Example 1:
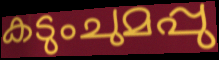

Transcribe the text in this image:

കടുംചുമപ്പു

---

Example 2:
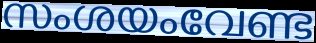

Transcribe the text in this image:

സംശയംവേണ്ട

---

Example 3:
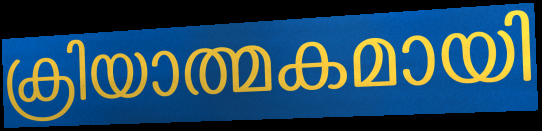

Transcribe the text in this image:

ക്രിയാത്മകമായി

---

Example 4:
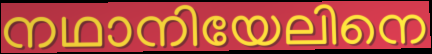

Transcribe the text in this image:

നഥാനിയേലിനെ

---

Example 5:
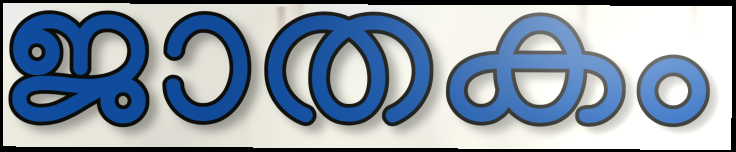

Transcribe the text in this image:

ജാതകം